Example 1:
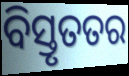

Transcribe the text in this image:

ବିସ୍ତୃତତର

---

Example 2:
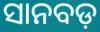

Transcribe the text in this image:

ସାନବଡ଼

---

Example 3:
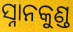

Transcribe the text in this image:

ସ୍ନାନକୁଣ୍ଡ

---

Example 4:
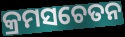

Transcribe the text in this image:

କ୍ରମସଚେତନ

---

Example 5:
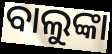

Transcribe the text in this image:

ବାଲୁଙ୍କା